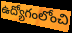
ఉద్యోగంలోంచి